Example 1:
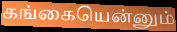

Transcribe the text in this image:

கங்கையென்னும்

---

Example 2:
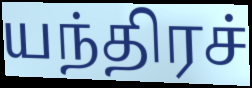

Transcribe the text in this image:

யந்திரச்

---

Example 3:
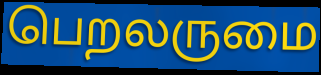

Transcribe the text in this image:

பெறலருமை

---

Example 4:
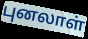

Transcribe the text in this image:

புனலாள்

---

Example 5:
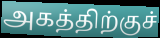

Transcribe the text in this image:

அகத்திற்குச்